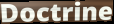
Doctrine